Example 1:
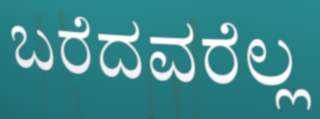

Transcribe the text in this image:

ಬರೆದವರೆಲ್ಲ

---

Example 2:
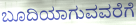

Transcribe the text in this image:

ಬೂದಿಯಾಗುವವರೆಗೆ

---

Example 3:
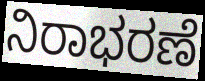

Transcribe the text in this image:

ನಿರಾಭರಣೆ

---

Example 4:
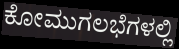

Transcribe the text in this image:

ಕೋಮುಗಲಭೆಗಳಲ್ಲಿ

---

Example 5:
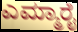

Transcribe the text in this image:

ಎಮ್ಮಾರೈ